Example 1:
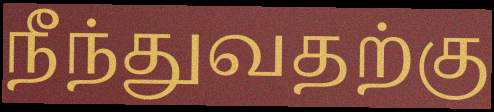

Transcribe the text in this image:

நீந்துவதற்கு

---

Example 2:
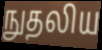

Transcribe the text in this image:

நுதலிய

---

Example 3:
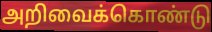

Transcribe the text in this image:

அறிவைக்கொண்டு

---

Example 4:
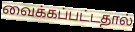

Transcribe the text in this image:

வைக்கப்பட்டதால்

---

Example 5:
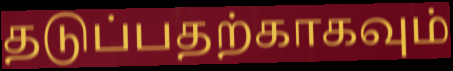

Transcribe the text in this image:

தடுப்பதற்காகவும்